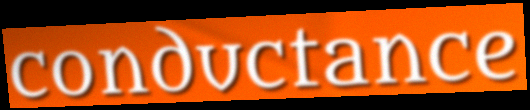
conductance